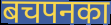
बचपनका